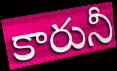
కారునీ